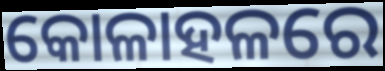
କୋଳାହଳରେ